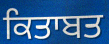
ਕਿਤਾਬਤ